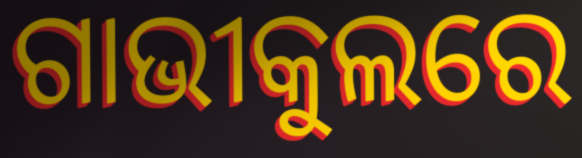
ଗାଭୀକୁଲରେ